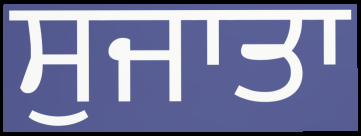
ਸੁਜਾਤਾ